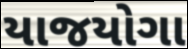
યાજયોગા